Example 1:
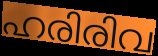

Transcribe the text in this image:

ഹരിരിവ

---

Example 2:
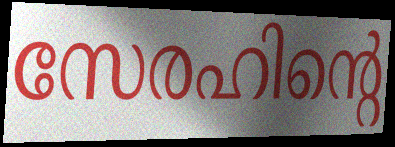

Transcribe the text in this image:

സേരഹിന്റെ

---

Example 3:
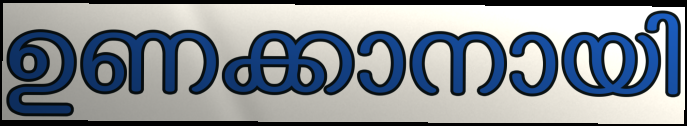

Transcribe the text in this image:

ഉണക്കാനായി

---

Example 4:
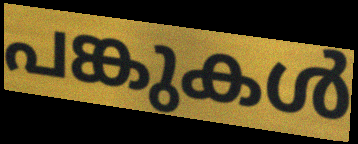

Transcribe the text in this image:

പങ്കുകൾ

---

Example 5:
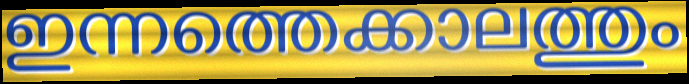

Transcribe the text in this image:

ഇന്നത്തെക്കാലത്തും